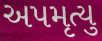
અપમૃત્યુ